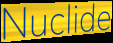
Nuclide